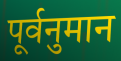
पूर्वनुमान